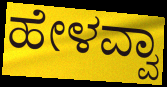
ಹೇಳವ್ವಾ